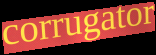
corrugator